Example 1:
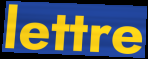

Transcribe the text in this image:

lettre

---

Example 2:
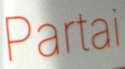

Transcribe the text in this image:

Partai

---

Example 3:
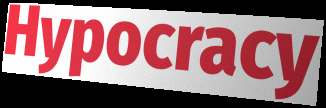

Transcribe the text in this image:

Hypocracy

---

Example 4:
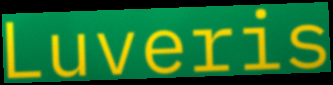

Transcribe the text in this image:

Luveris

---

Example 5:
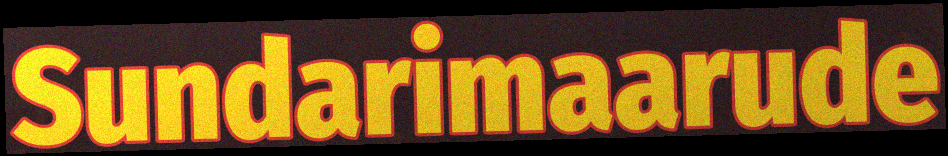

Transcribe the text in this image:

Sundarimaarude